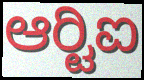
ಆರ್‍ಟಿಐ